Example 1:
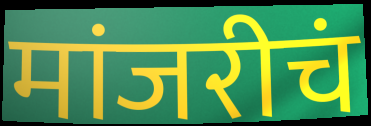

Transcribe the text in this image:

मांजरीचं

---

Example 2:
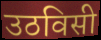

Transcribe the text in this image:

उठविसी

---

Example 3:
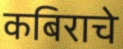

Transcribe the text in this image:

कबिराचे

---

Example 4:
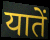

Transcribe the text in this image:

यातें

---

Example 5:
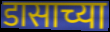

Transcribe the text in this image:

डासाच्या